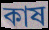
কাষ